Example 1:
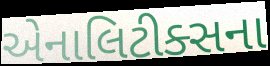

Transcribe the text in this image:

એનાલિટીક્સના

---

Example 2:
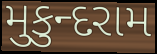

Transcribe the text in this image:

મુકુન્દરામ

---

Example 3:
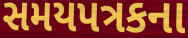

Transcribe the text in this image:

સમયપત્રકના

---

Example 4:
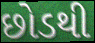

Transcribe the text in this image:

છોડથી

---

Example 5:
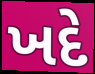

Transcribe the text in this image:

ખદે